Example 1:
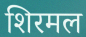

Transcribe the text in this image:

शिरमल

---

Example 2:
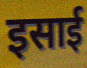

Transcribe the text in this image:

इसाई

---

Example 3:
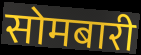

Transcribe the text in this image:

सोमबारी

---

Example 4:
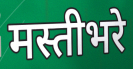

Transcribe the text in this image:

मस्तीभरे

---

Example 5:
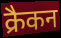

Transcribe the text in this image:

क्रैकन